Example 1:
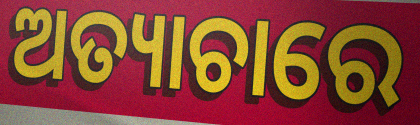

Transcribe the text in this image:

ଅତ୍ୟାଚାରେ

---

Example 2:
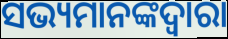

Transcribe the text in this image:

ସଭ୍ୟମାନଙ୍କଦ୍ୱାରା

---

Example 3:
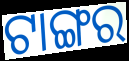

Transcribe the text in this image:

ଟାଙ୍ଗର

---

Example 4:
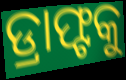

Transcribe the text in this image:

ଡ୍ରାଫ୍ଟକୁ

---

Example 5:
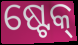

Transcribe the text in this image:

ଷ୍ଟେକ୍